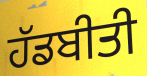
ਹੱਡਬੀਤੀ